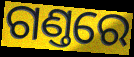
ଗଣ୍ତରେ